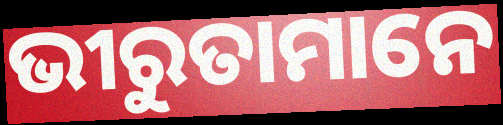
ଭୀରୁତାମାନେ